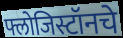
फ्लोजिस्टॉनचे